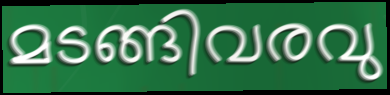
മടങ്ങിവരവു